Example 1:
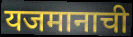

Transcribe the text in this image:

यजमानाची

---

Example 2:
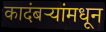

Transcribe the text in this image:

कादंबर्‍यांमधून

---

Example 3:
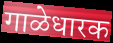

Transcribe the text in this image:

गाळेधारक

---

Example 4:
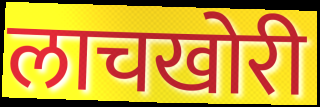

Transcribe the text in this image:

लाचखोरी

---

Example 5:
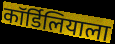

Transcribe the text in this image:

कॉर्डिलियाला